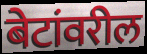
बेटांवरील